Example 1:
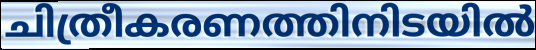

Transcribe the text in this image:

ചിത്രീകരണത്തിനിടയിൽ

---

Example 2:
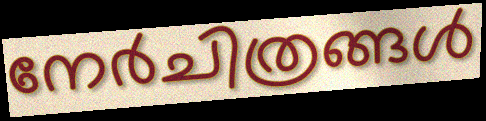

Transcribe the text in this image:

നേർചിത്രങ്ങൾ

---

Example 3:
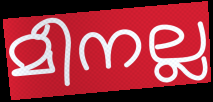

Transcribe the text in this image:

മീനല്ല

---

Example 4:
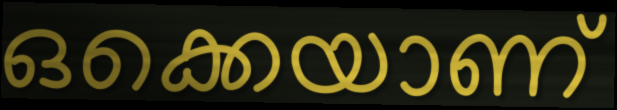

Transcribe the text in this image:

ഒക്കെയാണ്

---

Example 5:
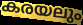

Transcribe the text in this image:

കരയലും